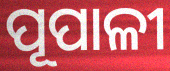
ପୂପାଳୀ